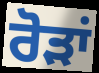
ਰੋੜਾਂ